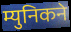
म्युनिकने